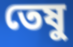
তেষু